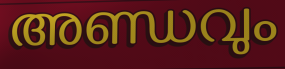
അണ്ഡവും